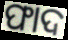
ଫାଦ